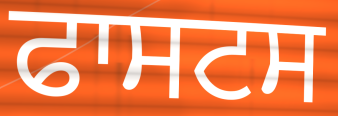
ਫਾਸਟਸ